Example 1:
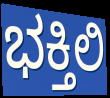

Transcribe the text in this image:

ಭಕ್ತಿಲಿ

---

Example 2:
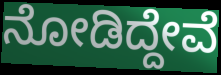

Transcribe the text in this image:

ನೋಡಿದ್ದೇವೆ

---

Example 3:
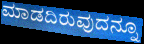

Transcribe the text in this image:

ಮಾಡದಿರುವುದನ್ನೂ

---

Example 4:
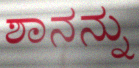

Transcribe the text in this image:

ಶಾನನ್ನು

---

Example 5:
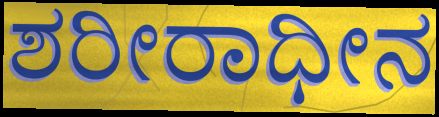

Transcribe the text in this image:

ಶರೀರಾಧೀನ